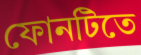
ফোনটিতে